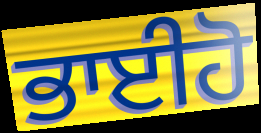
ਭਾਈਹੋ